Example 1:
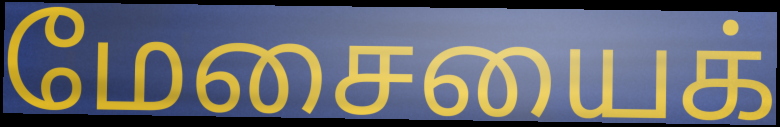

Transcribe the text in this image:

மேசையைக்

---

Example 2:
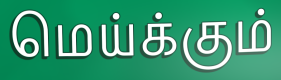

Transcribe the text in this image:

மெய்க்கும்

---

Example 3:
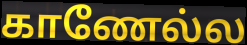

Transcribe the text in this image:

காணேல்ல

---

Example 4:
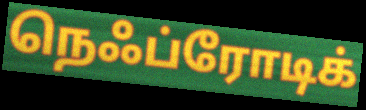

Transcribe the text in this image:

நெஃப்ரோடிக்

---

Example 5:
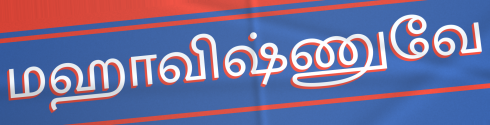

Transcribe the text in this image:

மஹாவிஷ்ணுவே